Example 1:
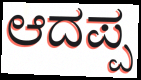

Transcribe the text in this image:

ಆದಪ್ಪ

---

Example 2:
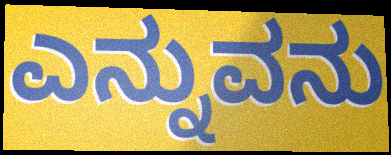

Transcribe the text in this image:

ಎನ್ನುವನು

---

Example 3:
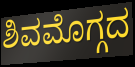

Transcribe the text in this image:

ಶಿವಮೊಗ್ಗದ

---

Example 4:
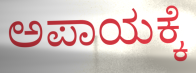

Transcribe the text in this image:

ಅಪಾಯಕ್ಕೆ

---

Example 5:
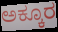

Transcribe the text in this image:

ಅಕ್ಕೂರ